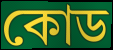
কোড